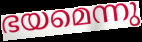
ഭയമെന്നു